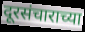
दूरसंचाराच्या